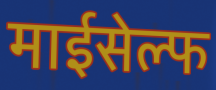
माईसेल्फ